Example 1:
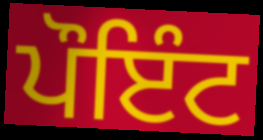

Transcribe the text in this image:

ਪੌਇੰਟ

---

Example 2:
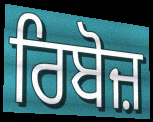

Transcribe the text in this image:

ਰਿਬੋਜ਼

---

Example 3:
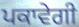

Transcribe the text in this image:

ਪਕਾਵੇਗੀ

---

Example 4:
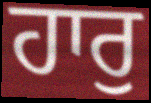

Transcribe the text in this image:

ਹਾਰੁ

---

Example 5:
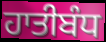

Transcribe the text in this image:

ਹਾਤੀਬੰਧ